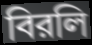
বিরলি